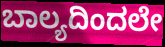
ಬಾಲ್ಯದಿಂದಲೇ